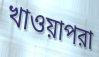
খাওয়াপরা